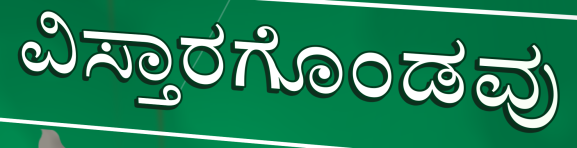
ವಿಸ್ತಾರಗೊಂಡವು